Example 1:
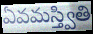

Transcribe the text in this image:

ఏవమస్త్వితి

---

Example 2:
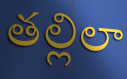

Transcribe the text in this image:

తల్లిలా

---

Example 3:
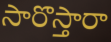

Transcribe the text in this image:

సారొస్తారా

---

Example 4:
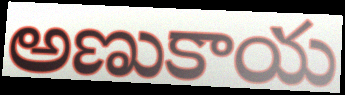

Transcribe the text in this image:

అణుకాయ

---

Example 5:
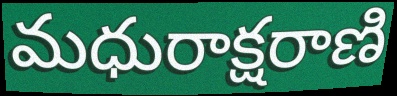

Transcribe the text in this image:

మధురాక్షరాణి